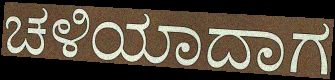
ಚಳಿಯಾದಾಗ